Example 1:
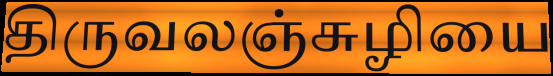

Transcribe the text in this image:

திருவலஞ்சுழியை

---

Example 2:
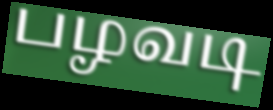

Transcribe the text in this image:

பழவடி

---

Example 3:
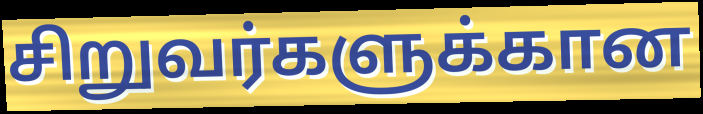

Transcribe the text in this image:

சிறுவர்களுக்கான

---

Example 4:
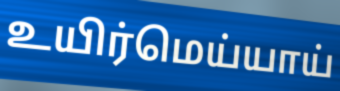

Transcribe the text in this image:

உயிர்மெய்யாய்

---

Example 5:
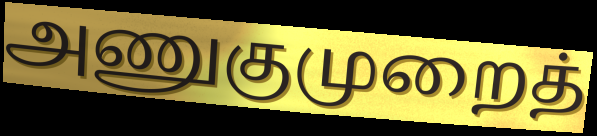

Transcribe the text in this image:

அணுகுமுறைத்